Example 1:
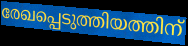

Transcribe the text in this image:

രേഖപ്പെടുത്തിയത്തിന്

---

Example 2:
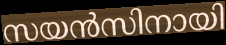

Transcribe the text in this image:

സയൻസിനായി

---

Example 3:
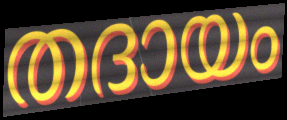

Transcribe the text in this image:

തദായം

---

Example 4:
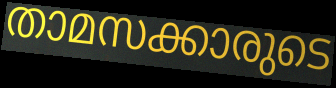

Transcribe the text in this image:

താമസക്കാരുടെ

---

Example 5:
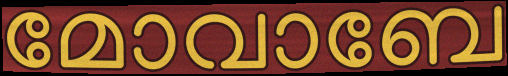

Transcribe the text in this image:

മോവാബേ